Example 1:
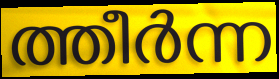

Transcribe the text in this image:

ത്തീർന്ന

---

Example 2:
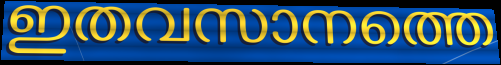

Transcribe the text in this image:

ഇതവസാനത്തെ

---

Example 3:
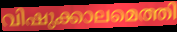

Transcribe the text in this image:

വിഷുക്കാലമെത്തി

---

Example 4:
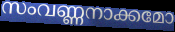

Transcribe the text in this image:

സംവണ്ണനാക്കമോ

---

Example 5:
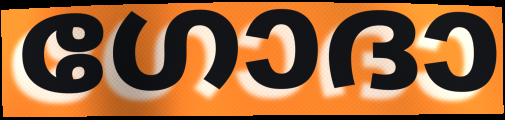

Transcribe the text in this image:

ഗോദാ